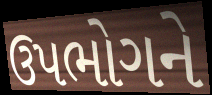
ઉપભોગને